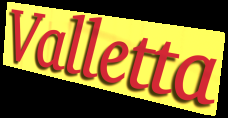
Valletta